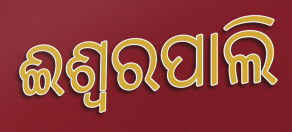
ଈଶ୍ୱରପାଲି